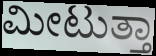
ಮೀಟುತ್ತಾ